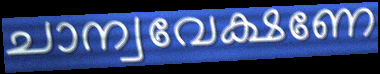
ചാന്വവേക്ഷണേ